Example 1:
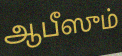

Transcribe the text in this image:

ஆபீஸும்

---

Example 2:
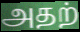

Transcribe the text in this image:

அதற்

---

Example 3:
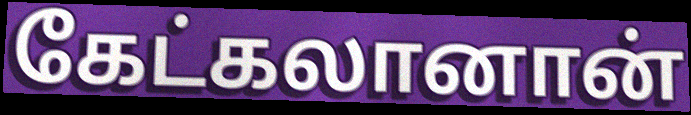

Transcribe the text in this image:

கேட்கலானான்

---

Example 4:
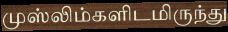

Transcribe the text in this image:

முஸ்லிம்களிடமிருந்து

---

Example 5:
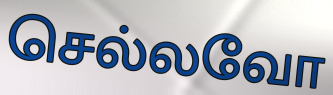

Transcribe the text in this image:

செல்லவோ